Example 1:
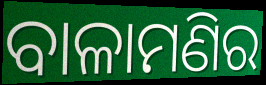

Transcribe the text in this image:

ବାଳାମଣିର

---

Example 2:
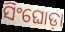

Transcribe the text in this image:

ସିଂଘୋଡ଼ା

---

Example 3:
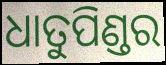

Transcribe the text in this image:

ଧାତୁପିଣ୍ଡର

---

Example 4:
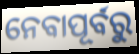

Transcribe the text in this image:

ନେବାପୂର୍ବରୁ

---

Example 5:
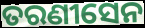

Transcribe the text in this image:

ତରଣୀସେନ